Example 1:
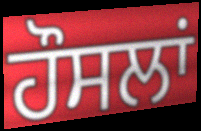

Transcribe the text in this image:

ਹੌਸਲਾਂ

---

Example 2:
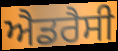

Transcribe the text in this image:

ਐਡਰੈਸੀ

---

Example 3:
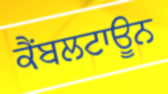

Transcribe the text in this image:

ਕੈਂਬਲਟਾਊਨ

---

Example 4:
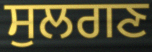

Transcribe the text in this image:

ਸੁਲਗਣ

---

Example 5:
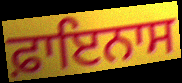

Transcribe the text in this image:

ਫ਼ਾਇਨਾਸ